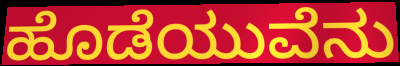
ಹೊಡೆಯುವೆನು